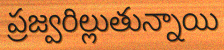
ప్రజ్వరిల్లుతున్నాయి